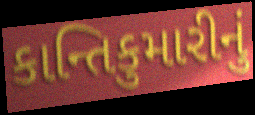
કાન્તિકુમારીનું